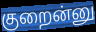
குறைன்னு